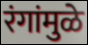
रंगांमुळे